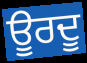
ਊਰਦੂ